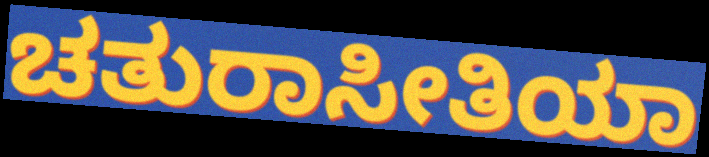
ಚತುರಾಸೀತಿಯಾ